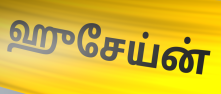
ஹுசேய்ன்